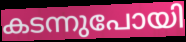
കടന്നുപോയി